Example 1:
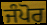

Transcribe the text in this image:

ਜੰਪੋਰ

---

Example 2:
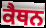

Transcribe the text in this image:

ਕੈਥਨ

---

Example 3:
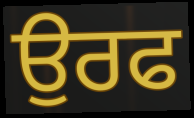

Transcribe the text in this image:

ਉਰਫ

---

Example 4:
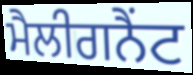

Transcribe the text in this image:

ਮੈਲੀਗਨੈਂਟ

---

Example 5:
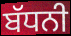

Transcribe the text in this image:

ਬੱਧਨੀ